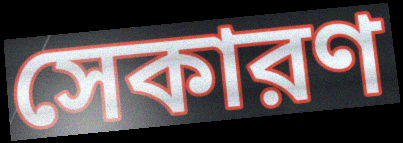
সেকারণ